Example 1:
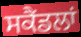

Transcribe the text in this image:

ਸਕੈਂਡਲਾਂ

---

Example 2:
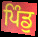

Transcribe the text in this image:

ਪਿੰਡੁ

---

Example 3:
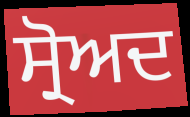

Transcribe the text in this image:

ਸ੍ਰੋਅਦ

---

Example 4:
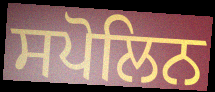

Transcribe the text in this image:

ਸਪੋਲਿਨ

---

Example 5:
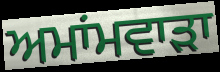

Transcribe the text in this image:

ਅਮਾਂਮਵਾੜਾ